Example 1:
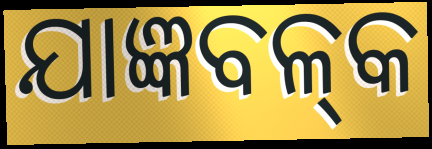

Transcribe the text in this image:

ଯାଜ୍ଞବଳ୍‍କ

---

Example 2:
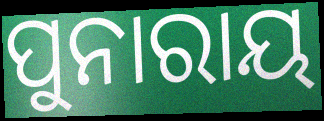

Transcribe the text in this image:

ପୁନାରାୟ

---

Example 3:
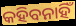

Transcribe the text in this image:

କହିବନାହିଁ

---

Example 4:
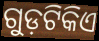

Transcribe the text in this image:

ଗୁଡ଼ଟିକିଏ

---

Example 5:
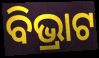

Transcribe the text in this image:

ବିଭ୍ରାଟ